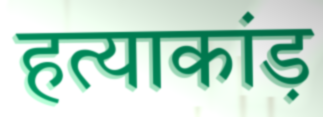
हत्याकांड़